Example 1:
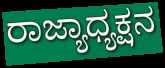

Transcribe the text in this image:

ರಾಜ್ಯಾಧ್ಯಕ್ಷನ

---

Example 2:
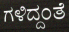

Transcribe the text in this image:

ಗಳಿದ್ದಂತೆ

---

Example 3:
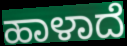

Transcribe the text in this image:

ಹಾಳಾದೆ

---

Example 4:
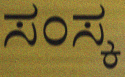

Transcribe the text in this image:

ಸಂಸ್ಕ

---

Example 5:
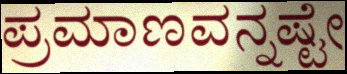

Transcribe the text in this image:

ಪ್ರಮಾಣವನ್ನಷ್ಟೇ